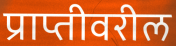
प्राप्तीवरील